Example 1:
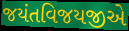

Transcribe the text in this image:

જયંતવિજયજીએ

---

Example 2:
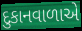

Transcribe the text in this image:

દુકાનવાળાએ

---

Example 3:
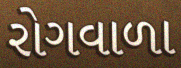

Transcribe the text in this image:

રોગવાળા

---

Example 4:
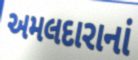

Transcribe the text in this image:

અમલદારાનાં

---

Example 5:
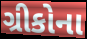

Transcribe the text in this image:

ગ્રીકોના